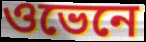
ওভেনে